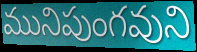
మునిపుంగవుని